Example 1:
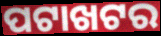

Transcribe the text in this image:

ପଟାଖଟର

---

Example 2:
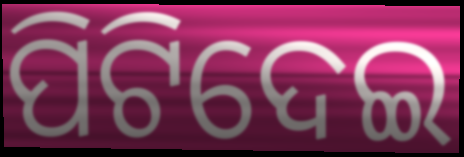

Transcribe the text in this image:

ପିଟିଦେଇ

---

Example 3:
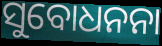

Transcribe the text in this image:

ସୁବୋଧନନା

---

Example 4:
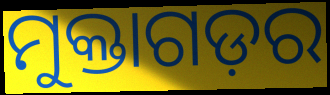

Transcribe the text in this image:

ମୁକ୍ତାଗଡ଼ର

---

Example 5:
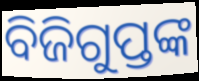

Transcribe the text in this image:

ବିଜିଗୁପ୍ତଙ୍କ